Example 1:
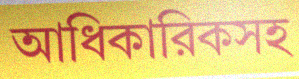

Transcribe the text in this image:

আধিকারিকসহ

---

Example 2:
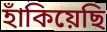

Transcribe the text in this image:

হাঁকিয়েছি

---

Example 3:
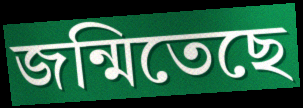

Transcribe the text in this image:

জন্মিতেছে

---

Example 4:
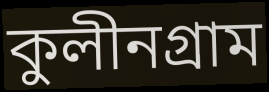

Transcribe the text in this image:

কুলীনগ্রাম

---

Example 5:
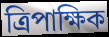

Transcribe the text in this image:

ত্রিপাক্ষিক